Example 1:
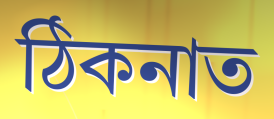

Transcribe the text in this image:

ঠিকনাত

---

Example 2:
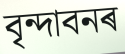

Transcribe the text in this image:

বৃন্দাবনৰ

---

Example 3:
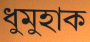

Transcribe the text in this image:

ধুমুহাক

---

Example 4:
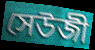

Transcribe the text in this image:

সেউজী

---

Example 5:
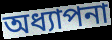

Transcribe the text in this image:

অধ্যাপনা